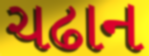
ચઢાન